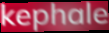
kephale